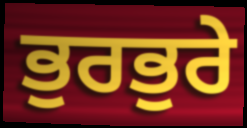
ਭੁਰਭੁਰੇ